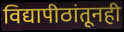
विद्यापीठांतूनही